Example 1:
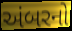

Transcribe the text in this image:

અંબરનો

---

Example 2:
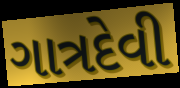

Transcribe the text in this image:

ગાત્રદેવી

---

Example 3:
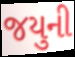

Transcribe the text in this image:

જયુની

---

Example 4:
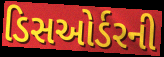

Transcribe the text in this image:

ડિસઓર્ડરની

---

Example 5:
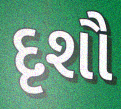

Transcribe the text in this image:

દૃશૌ